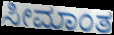
ಸೀಮಾಂತ